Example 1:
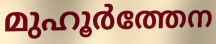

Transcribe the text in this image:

മുഹൂർത്തേന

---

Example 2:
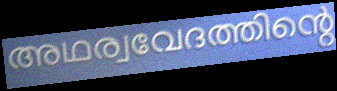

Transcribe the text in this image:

അഥര്വവേദത്തിന്റെ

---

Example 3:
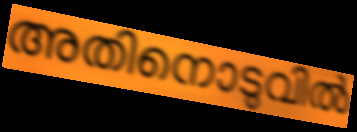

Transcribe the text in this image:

അതിനൊടുവിൽ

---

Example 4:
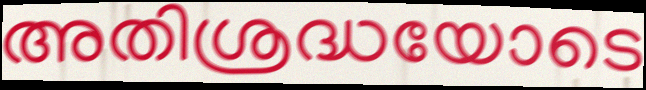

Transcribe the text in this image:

അതിശ്രദ്ധയോടെ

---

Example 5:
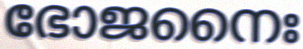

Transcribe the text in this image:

ഭോജനൈഃ